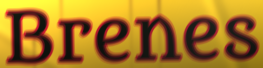
Brenes